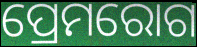
ପ୍ରେମରୋଗ